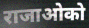
राजाओको